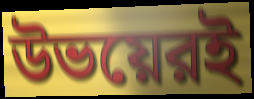
উভয়েরই